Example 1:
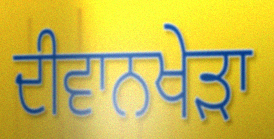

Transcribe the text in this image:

ਦੀਵਾਨਖੇੜਾ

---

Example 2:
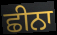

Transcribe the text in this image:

ਛੀਨਾ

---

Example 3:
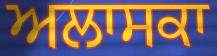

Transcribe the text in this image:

ਅਲਾਸਕਾ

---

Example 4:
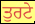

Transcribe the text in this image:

ਤੁਰਟੇ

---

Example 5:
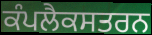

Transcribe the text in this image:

ਕੰਪਲੈਕਸਤਰਨ